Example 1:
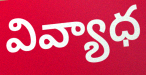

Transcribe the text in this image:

వివ్యాధ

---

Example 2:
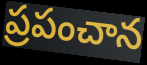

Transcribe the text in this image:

ప్రపంచాన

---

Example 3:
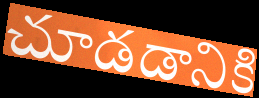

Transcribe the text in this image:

చూడడానికి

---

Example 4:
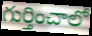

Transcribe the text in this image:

గుర్తించాలో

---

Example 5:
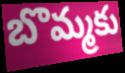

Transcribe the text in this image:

బొమ్మకు